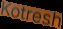
Kotresh